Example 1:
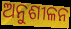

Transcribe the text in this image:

ଅନୁଶୀଳନ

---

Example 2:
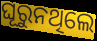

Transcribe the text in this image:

ଘୂରୁନଥିଲେ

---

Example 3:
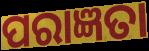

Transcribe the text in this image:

ପରାଜ୍ଞତା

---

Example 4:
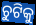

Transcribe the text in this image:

ଚୁଟିକୁ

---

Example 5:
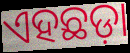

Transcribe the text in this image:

ଏହଛଡ଼ା